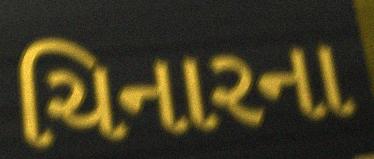
ચિનારના